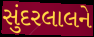
સુંદરલાલને